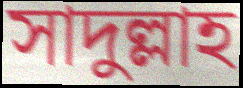
সাদুল্লাহ